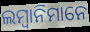
ଲମ୍ବାନିମାନେ